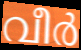
വീർ